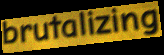
brutalizing